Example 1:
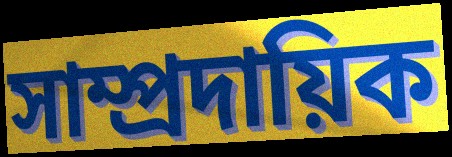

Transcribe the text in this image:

সাম্প্ৰদায়িক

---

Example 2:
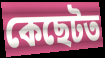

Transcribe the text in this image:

কেছেটত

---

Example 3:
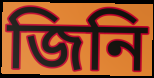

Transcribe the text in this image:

জিনি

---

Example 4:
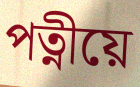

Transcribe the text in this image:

পত্নীয়ে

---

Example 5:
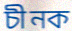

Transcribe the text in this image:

চীনক